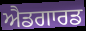
ਐਡਗਾਰਡ